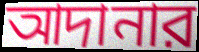
আদানার